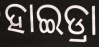
ହାଇଡ୍ରା